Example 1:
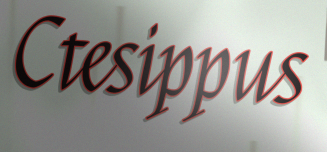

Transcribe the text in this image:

Ctesippus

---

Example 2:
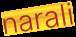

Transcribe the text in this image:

narali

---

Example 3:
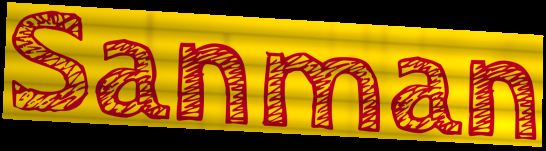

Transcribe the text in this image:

Sanman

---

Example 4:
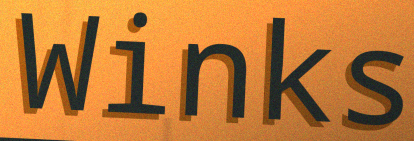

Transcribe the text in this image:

Winks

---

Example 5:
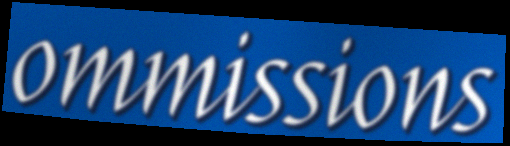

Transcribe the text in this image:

ommissions